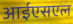
आईएसएल